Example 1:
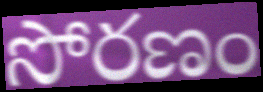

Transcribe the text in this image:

సోరణం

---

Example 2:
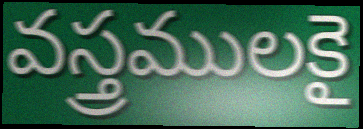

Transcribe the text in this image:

వస్త్రములకై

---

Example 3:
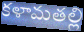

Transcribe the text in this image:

కళామతల్లి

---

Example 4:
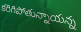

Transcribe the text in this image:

కరిగిపోతున్నాయన్న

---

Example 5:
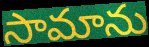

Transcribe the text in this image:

సామాను